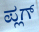
ಪ್ಲಗ್